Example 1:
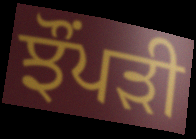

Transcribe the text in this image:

ਝੌਂਪੜੀ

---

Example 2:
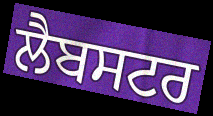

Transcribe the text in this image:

ਲੈਬਸਟਰ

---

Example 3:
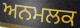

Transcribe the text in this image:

ਅਨਮਲਕ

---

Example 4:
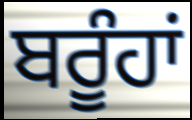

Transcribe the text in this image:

ਬਰੂੰਹਾਂ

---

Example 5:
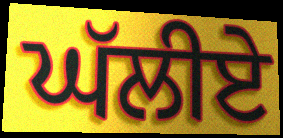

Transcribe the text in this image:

ਘੱਲੀਏ